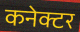
कनेक्टर